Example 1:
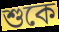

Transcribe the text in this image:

শুকে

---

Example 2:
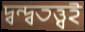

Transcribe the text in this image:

দ্বন্দ্বতত্ত্বই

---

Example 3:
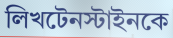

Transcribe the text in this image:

লিখটেনস্টাইনকে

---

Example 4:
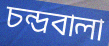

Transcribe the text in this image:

চন্দ্রবালা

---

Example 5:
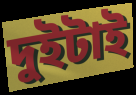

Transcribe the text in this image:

দুইটাই